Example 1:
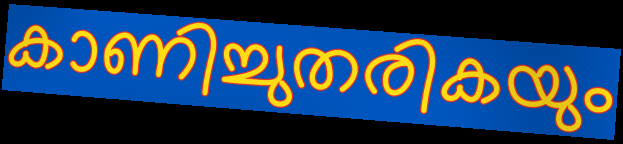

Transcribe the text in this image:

കാണിച്ചുതരികയും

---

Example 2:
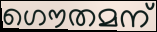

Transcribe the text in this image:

ഗൌതമന്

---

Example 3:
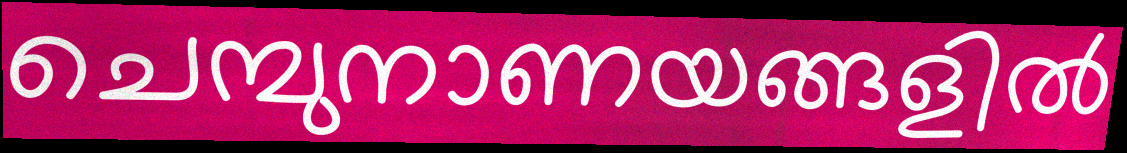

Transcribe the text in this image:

ചെമ്പുനാണയങ്ങളിൽ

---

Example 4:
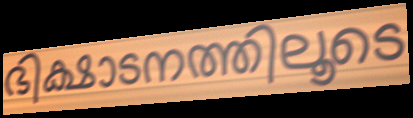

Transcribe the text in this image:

ഭിക്ഷാടനത്തിലൂടെ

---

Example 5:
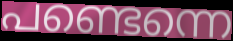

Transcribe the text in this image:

പണ്ടെന്നെ